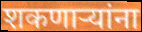
शकणार्‍यांना